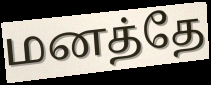
மனத்தே